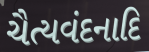
ચૈત્યવંદનાદિ